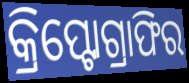
କ୍ରିପ୍ଟୋଗ୍ରାଫିର